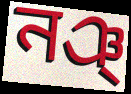
নঞ্